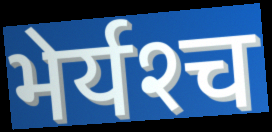
भेर्यश्च